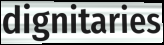
dignitaries